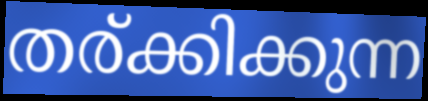
തര്ക്കിക്കുന്ന